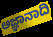
ಅಜ್ಞಾನಾದಿ